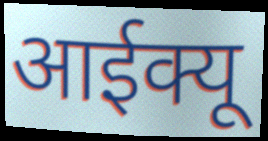
आईक्यू